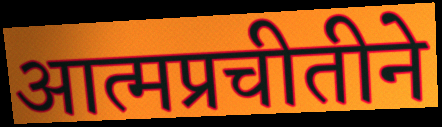
आत्मप्रचीतीने